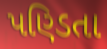
પણ્ડિતા